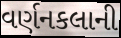
વર્ણનકલાની